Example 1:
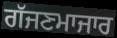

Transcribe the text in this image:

ਗੱਜਣਮਾਜਾਰ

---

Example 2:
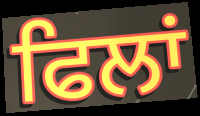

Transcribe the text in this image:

ਫਿਲਾਂ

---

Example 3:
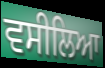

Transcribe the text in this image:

ਵਸੀਲਿਆ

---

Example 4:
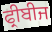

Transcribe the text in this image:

ਫ੍ਰੀਬੀਜ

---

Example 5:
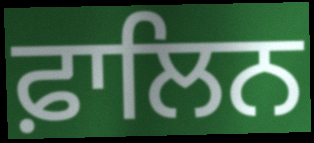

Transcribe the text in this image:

ਫ਼ਾਲਿਨ